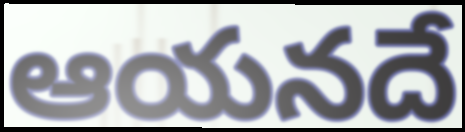
ఆయనదే